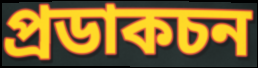
প্ৰডাকচন